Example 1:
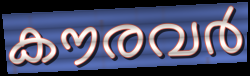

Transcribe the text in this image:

കൗരവർ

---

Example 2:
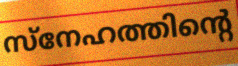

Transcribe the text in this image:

സ്നേഹത്തിന്റെ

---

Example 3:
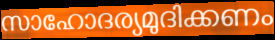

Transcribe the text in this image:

സാഹോദര്യമുദിക്കണം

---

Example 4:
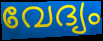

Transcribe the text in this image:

വേദ്യം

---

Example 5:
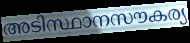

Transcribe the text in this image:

അടിസ്ഥാനസൗകര്യ